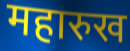
महारुख